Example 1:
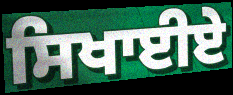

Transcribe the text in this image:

ਸਿਖਾਈਏ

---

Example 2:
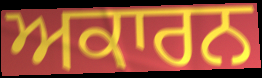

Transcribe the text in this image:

ਅਕਾਰਨ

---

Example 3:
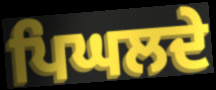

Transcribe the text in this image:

ਪਿਘਲਦੇ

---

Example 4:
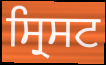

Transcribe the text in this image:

ਸ੍ਰਿਸਟ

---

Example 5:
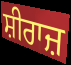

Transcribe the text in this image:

ਸ਼ੀਰਾਜ਼